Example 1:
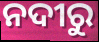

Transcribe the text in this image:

ନଦୀରୁ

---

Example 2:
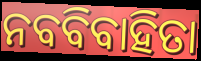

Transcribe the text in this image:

ନବବିବାହିତା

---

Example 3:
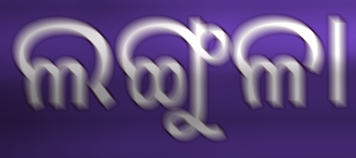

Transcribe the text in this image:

ଲଙ୍ଗୁଳା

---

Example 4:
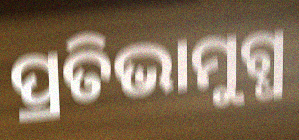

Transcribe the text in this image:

ପ୍ରତିଭାମୁଗ୍ଧ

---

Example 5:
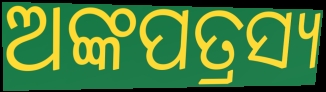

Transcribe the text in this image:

ଅଙ୍କପତ୍ରସ୍ୟ